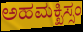
ಅಹಮಕ್ಖಿಸ್ಸಂ